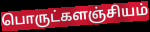
பொருட்களஞ்சியம்